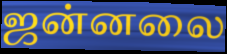
ஜன்னலை